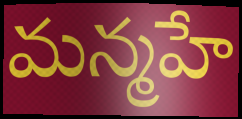
మన్మహే